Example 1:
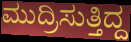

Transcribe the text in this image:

ಮುದ್ರಿಸುತ್ತಿದ್ದ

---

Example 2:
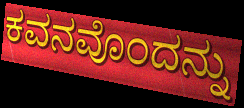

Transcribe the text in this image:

ಕವನವೊಂದನ್ನು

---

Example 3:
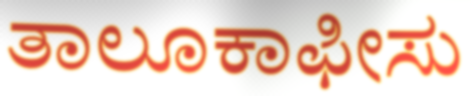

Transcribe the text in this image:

ತಾಲೂಕಾಫೀಸು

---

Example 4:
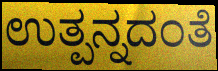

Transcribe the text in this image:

ಉತ್ಪನ್ನದಂತೆ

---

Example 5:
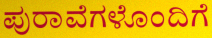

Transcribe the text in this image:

ಪುರಾವೆಗಳೊಂದಿಗೆ